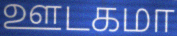
ஊடகமா